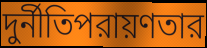
দুর্নীতিপরায়ণতার